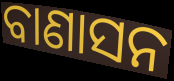
ବାଣାସନ